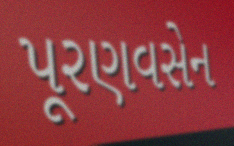
પૂરણવસેન